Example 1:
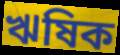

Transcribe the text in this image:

ঋষিক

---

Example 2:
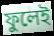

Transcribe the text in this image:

ফুলেই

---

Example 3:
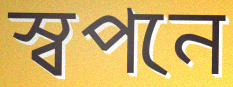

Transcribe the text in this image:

স্বপনে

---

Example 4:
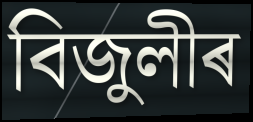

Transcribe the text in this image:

বিজুলীৰ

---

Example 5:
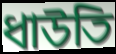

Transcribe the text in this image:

ধাউতি